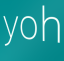
yoh